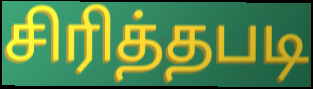
சிரித்தபடி